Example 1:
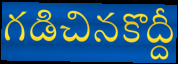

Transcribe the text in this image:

గడిచినకొద్దీ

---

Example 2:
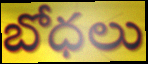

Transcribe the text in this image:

బోధలు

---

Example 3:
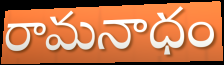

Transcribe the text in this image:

రామనాధం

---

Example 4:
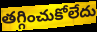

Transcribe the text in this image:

తగ్గించుకోలేదు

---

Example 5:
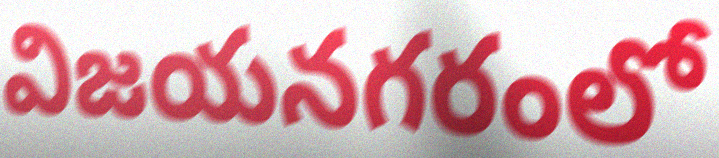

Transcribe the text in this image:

విజయనగరంలో